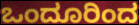
ಒಂದೂರಿಂದ